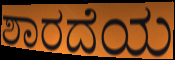
ಶಾರದೆಯ